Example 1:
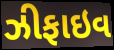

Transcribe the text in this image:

ઝીફાઇવ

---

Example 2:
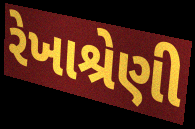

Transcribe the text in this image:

રેખાશ્રેણી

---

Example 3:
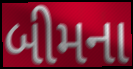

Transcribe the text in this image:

બીમના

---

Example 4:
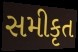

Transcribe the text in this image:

સમીકૃત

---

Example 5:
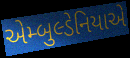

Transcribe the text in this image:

એમ્બુલ્ડેનિયાએ